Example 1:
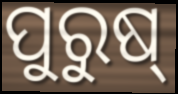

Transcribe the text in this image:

ପୁରୁଷ୍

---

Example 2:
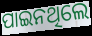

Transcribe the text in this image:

ପାଇନଥିଲେ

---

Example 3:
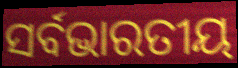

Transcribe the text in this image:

ସର୍ବଭାରତୀୟ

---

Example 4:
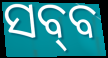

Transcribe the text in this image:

ସବ୍‌ବ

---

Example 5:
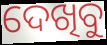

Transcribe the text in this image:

ଦେଖିବୁ